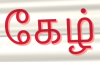
கேழ்